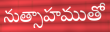
నుత్సాహముతో